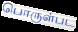
பொருள்பட